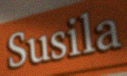
Susila